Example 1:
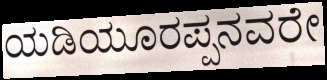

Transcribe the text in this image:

ಯಡಿಯೂರಪ್ಪನವರೇ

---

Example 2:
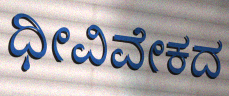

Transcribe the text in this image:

ಧೀವಿವೇಕದ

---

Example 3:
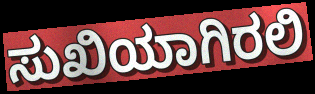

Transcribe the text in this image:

ಸುಖಿಯಾಗಿರಲಿ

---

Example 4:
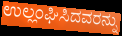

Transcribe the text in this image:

ಉಲ್ಲಂಘಿಸಿದವರನ್ನು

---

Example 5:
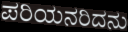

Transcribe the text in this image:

ಪರಿಯನರಿದನು